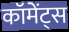
कॉमेंट्स